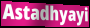
Astadhyayi